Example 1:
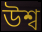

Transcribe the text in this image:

উশ্ব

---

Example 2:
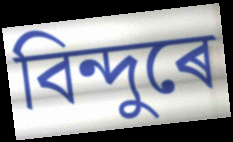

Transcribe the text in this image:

বিন্দুৰে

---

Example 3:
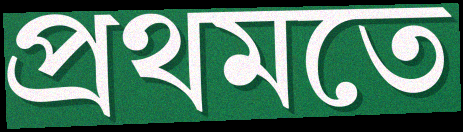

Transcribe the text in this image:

প্ৰথমতে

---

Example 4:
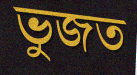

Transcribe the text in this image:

ভুজত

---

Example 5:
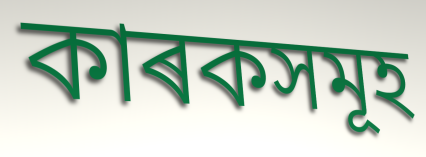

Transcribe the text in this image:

কাৰকসমূহ